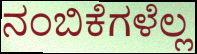
ನಂಬಿಕೆಗಳೆಲ್ಲ